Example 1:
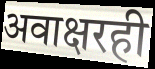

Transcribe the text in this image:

अवाक्षरही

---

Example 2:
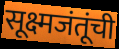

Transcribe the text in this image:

सूक्ष्मजंतूंची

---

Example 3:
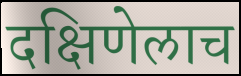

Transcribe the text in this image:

दक्षिणेलाच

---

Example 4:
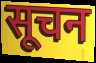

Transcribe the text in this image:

सूचन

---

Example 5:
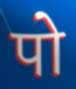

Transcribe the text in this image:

पो